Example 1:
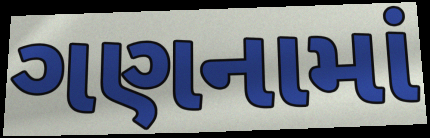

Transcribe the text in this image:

ગણનામાં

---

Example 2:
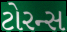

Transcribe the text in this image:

ટોરન્સ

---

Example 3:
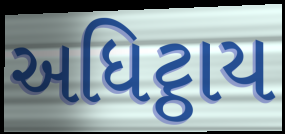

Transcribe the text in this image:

અધિટ્ઠાય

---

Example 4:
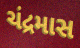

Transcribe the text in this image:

ચંદ્રમાસ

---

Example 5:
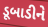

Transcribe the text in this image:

ડૂબાડીને